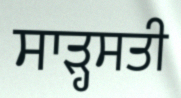
ਸਾੜ੍ਹਸਤੀ